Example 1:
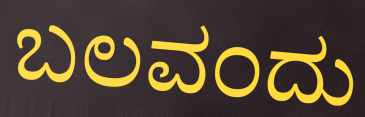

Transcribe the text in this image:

ಬಲವಂದು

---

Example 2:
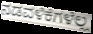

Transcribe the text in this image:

ನಡವಳಿಕೆಗಳೆಲ್ಲ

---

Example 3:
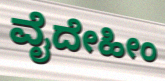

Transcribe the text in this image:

ವೈದೇಹೀಂ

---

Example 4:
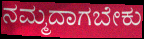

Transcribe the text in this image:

ನಮ್ಮದಾಗಬೇಕು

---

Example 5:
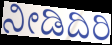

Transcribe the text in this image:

ನೀಡಿದಿರಿ